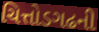
ચિત્તોડગઢની